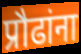
प्रौढांना